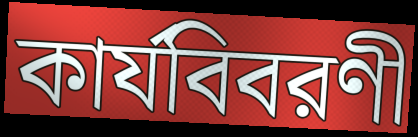
কার্যবিবরণী